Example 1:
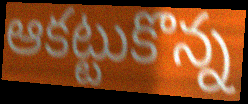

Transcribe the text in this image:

ఆకట్టుకొన్న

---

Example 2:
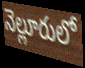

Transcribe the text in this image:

నెల్లూరులో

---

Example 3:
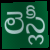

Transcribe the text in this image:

లెస్లీ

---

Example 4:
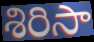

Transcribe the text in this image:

శిరిసా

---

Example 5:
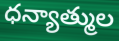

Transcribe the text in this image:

ధన్యాత్ముల